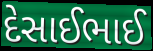
દેસાઈભાઈ